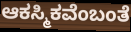
ಆಕಸ್ಮಿಕವೆಂಬಂತೆ